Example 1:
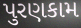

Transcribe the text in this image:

પુરણકામ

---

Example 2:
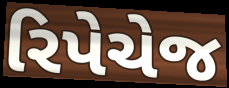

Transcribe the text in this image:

રિપેચેજ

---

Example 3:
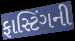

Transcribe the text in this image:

ફાસ્ટિંગની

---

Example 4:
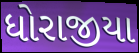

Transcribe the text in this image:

ધોરાજીયા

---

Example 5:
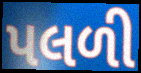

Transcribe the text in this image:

પલળી